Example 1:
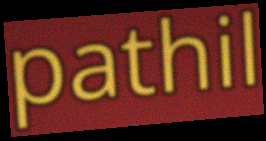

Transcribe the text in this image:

pathil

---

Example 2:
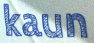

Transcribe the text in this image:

kaun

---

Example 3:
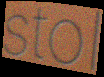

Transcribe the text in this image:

stol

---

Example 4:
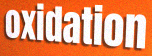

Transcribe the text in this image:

oxidation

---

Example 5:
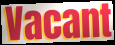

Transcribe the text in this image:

Vacant